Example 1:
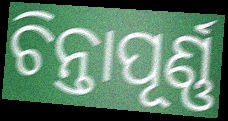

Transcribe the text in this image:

ଚିନ୍ତାପୂର୍ଣ୍ଣ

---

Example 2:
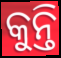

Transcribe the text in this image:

କୁନ୍ତି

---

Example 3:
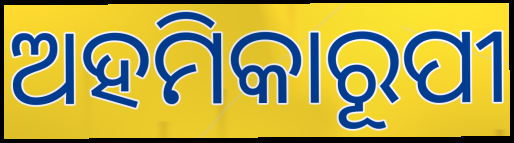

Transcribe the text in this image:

ଅହମିକାରୂପୀ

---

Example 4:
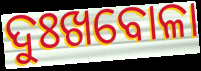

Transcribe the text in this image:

ଦୁଃଖବୋଳା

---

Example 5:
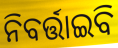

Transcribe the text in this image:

ନିବର୍ତ୍ତାଇବି